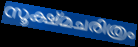
സൂക്ഷ്മചരിത്രം